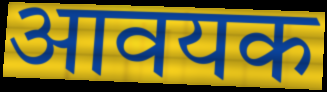
आवयक